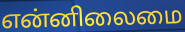
என்னிலைமை